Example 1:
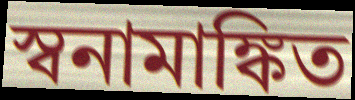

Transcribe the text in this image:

স্বনামাঙ্কিত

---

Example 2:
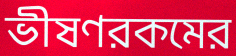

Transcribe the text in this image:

ভীষণরকমের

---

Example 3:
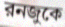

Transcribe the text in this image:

রনজুকে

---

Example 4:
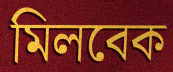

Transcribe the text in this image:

মিলবেক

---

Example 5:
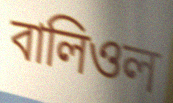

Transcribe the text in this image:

বালিওল